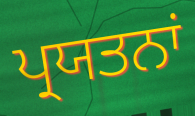
ਪ੍ਰਯਤਨਾਂ